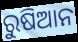
ରୁଷିଆନ